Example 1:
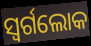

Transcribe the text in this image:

ସ୍ୱର୍ଗଲୋକ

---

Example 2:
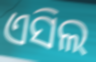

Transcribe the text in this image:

ଏସିଲ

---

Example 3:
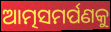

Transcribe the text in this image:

ଆତ୍ମସମର୍ପଣକୁ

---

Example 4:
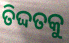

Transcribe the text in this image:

ତିଦ୍ଦତକୁ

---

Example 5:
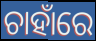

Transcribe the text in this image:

ଚାହାଁରେ